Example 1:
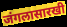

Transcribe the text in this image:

जंगलासारखी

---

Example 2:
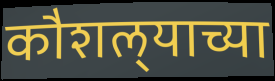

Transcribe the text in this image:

कौशल्याच्या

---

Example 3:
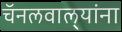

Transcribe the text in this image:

चॅनलवाल्यांना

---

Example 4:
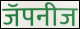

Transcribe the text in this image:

जॅपनीज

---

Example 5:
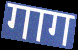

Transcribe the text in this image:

गाग